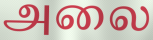
அலை